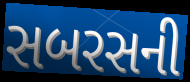
સબરસની